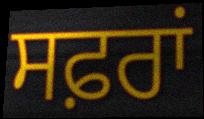
ਸਫ਼ਰਾਂ